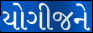
યોગીજને